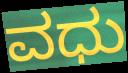
ವಧು